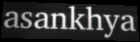
asankhya